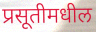
प्रसूतीमधील